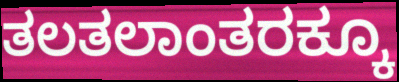
ತಲತಲಾಂತರಕ್ಕೂ